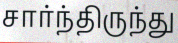
சார்ந்திருந்து